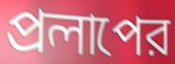
প্রলাপের